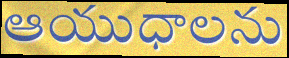
ఆయుధాలను